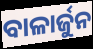
ବାଳାର୍ଜୁନ